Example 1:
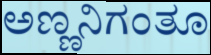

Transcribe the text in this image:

ಅಣ್ಣನಿಗಂತೂ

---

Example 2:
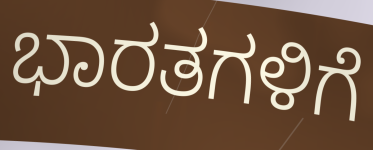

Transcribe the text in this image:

ಭಾರತಗಳಿಗೆ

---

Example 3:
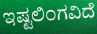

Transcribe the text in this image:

ಇಷ್ಟಲಿಂಗವಿದೆ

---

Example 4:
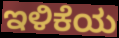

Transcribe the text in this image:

ಇಳಿಕೆಯ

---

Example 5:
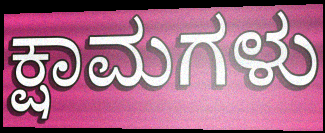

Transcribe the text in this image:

ಕ್ಷಾಮಗಳು